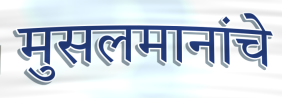
मुसलमानांचे